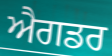
ਐਗਡਰ